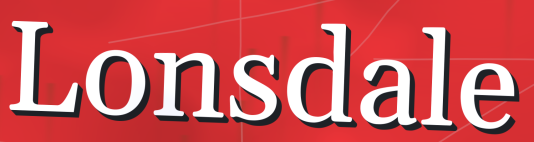
Lonsdale